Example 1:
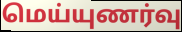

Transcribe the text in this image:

மெய்யுணர்வு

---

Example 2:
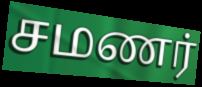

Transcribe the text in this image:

சமணர்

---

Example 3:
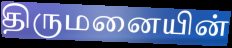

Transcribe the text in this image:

திருமனையின்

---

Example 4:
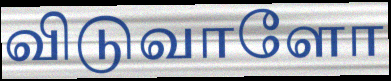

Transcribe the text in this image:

விடுவாளோ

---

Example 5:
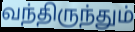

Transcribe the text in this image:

வந்திருந்தும்